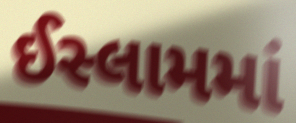
ઈસ્લામમાં